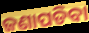
ଜଣାପଡିବା